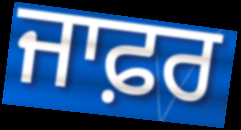
ਜਾਫ਼ਰ